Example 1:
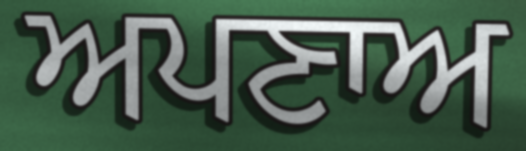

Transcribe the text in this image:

ਅਪਣਾਅ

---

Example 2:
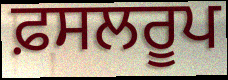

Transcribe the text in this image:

ਫ਼ਸਲਰੂਪ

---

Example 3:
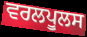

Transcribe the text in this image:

ਵਰਲਪੂਲਸ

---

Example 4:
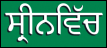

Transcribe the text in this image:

ਸ੍ਰੀਨਵਿੱਚ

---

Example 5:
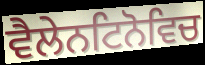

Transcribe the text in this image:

ਵੈਲੇਨਟਿਨੋਵਿਚ